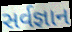
સર્વજ્ઞાન